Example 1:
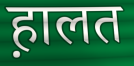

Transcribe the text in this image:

ह़ालत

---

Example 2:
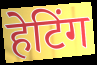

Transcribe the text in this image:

हेटिंग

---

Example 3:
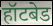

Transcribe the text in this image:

हॉटबेड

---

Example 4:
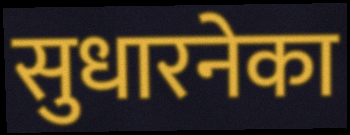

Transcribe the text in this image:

सुधारनेका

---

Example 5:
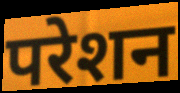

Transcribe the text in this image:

परेशन